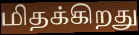
மிதக்கிறது